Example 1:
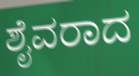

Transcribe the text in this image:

ಶೈವರಾದ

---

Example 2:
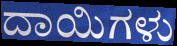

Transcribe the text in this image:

ದಾಯಿಗಳು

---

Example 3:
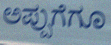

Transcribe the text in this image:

ಅಪ್ಪುಗೆಗೂ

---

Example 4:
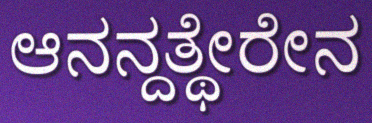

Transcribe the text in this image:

ಆನನ್ದತ್ಥೇರೇನ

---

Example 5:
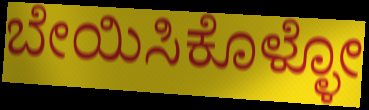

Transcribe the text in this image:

ಬೇಯಿಸಿಕೊಳ್ಳೋ